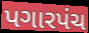
પગારપંચ